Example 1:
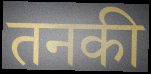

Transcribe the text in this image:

तनकी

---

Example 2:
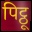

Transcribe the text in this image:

पिट्ठू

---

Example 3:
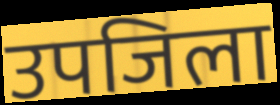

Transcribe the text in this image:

उपजिला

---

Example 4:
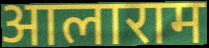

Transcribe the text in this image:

आलाराम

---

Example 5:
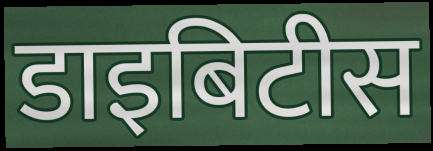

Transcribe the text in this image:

डाइबिटीस